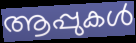
ആപ്പുകൾ